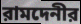
রামদেনীর